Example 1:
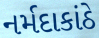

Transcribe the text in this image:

નર્મદાકાંઠે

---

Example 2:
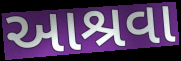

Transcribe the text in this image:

આશ્રવા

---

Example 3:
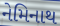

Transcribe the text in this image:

નેમિનાથ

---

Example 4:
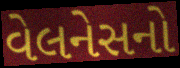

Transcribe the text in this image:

વેલનેસનો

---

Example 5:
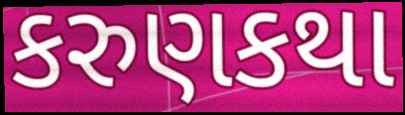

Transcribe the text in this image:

કરુણકથા